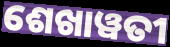
ଶେଖାୱତୀ